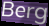
Berg